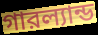
গারল্যান্ড